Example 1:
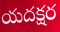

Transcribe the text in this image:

యదక్షర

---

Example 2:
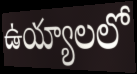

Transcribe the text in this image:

ఉయ్యాలలో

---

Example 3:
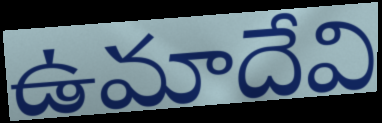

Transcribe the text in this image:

ఉమాదేవి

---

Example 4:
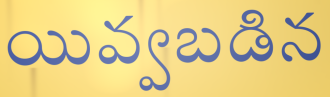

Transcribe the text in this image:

యివ్వబడిన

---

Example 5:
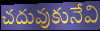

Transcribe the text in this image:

చదువుకునేవి